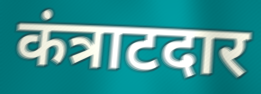
कंत्राटदार